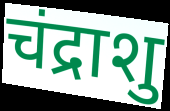
चंद्राशु